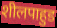
शीलपाहुड